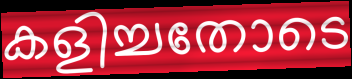
കളിച്ചതോടെ